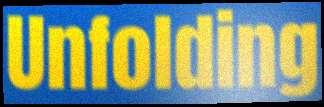
Unfolding